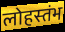
लोहस्तंभ